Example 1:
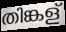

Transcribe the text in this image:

തിങ്കള്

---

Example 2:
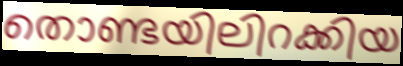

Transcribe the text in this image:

തൊണ്ടയിലിറക്കിയ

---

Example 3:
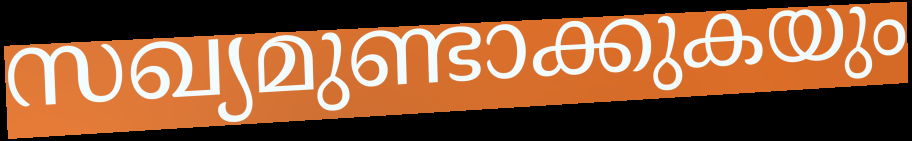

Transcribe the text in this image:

സഖ്യമുണ്ടാക്കുകയും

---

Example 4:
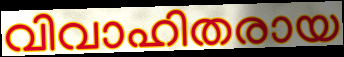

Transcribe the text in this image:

വിവാഹിതരായ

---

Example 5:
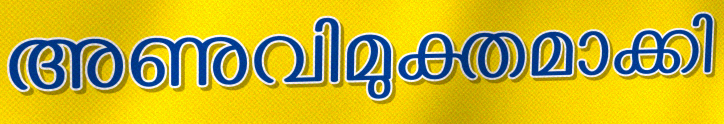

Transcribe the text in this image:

അണുവിമുക്തമാക്കി